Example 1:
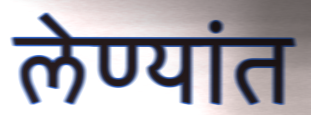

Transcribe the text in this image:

लेण्यांत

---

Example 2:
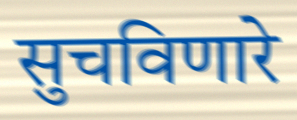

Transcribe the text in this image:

सुचविणारे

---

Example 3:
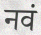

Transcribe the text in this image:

नवं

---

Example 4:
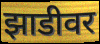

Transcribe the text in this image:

झाडीवर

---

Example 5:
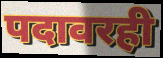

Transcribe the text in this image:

पदावरही